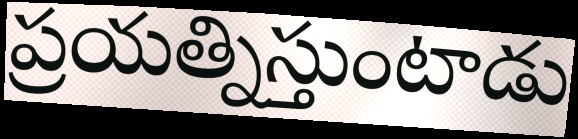
ప్రయత్నిస్తుంటాడు